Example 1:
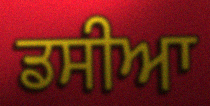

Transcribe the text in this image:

ਡਸੀਆ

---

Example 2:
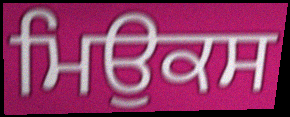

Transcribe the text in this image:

ਮਿਉਕਸ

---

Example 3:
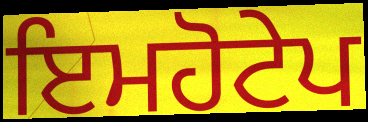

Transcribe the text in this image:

ਇਮਹੋਟੇਪ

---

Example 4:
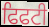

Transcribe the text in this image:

ਫਿਫਟੀ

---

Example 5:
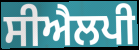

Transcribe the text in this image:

ਸੀਐਲਪੀ